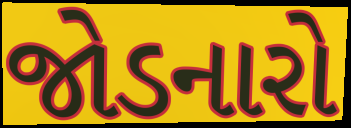
જોડનારો